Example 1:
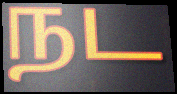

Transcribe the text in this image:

நட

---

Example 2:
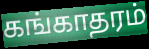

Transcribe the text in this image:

கங்காதரம்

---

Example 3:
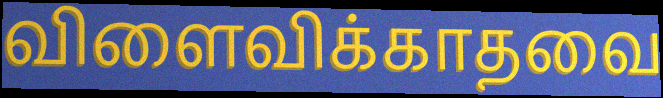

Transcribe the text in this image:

விளைவிக்காதவை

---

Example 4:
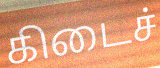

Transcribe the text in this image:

கிடைச்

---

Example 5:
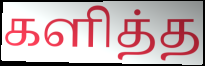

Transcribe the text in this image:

களித்த